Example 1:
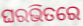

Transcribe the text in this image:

ଘରଭିତରେ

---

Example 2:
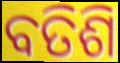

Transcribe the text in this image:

ବତିଶି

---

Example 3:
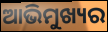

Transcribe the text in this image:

ଆଭିମୁଖ୍ୟର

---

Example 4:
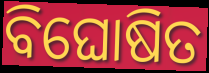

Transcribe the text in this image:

ବିଘୋଷିତ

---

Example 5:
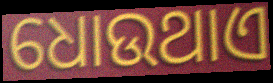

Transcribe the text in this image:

ଧୋଉଥାଏ